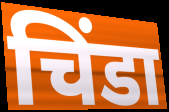
चिंडा